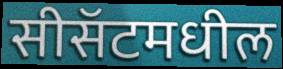
सीसॅटमधील